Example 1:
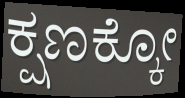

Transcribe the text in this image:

ಕ್ಷಣಕ್ಕೋ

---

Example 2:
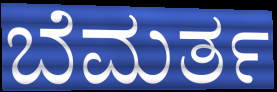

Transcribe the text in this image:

ಬೆಮರ್ತ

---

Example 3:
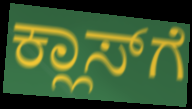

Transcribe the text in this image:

ಕ್ಲಾಸ್‍ಗೆ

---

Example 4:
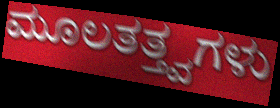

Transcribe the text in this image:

ಮೂಲತತ್ತ್ವಗಳು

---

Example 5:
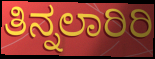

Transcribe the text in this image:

ತಿನ್ನಲಾರಿರಿ